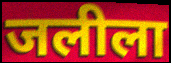
जलीला